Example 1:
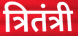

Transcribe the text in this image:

त्रितंत्री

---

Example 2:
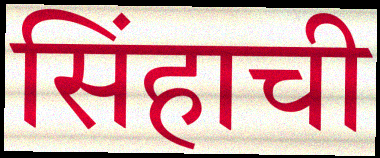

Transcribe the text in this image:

सिंहाची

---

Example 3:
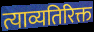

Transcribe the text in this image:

त्याव्यतिरिक्त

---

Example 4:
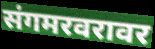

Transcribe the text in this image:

संगमरवरावर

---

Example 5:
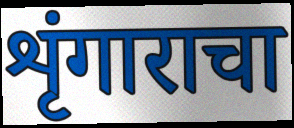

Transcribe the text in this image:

शृंगाराचा